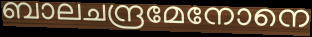
ബാലചന്ദ്രമേനോനെ